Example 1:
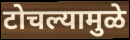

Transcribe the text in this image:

टोचल्यामुळे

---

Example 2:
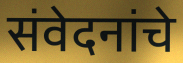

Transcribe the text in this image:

संवेदनांचे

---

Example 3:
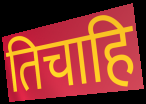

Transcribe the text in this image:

तिचाहि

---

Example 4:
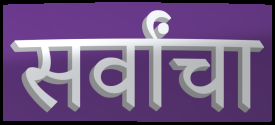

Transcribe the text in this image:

सर्वांचा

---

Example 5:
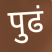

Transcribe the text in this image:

पुढं